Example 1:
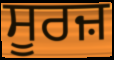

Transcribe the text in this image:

ਸੂਰਜ਼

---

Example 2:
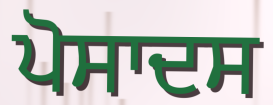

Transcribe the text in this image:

ਪੋਸਾਦਸ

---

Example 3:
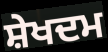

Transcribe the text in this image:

ਸ਼ੇਖਦਮ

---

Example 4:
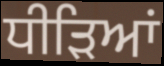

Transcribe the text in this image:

ਧੀੜਿਆਂ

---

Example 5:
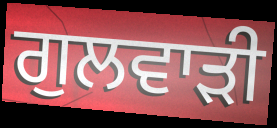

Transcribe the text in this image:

ਗੁਲਵਾੜੀ